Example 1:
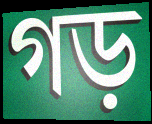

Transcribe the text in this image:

গড়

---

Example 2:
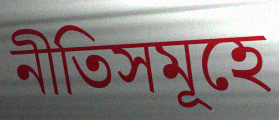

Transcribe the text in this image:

নীতিসমূহে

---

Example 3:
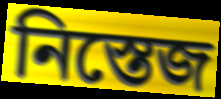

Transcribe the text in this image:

নিস্তেজ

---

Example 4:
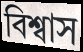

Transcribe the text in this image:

বিশ্বাস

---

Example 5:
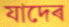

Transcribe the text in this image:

যাদেৰ